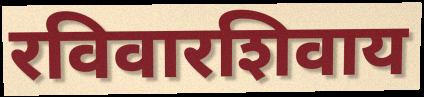
रविवारशिवाय